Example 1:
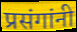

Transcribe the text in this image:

प्रसंगांनी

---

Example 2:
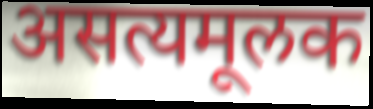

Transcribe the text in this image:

असत्यमूलक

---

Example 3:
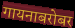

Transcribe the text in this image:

गायनाबरोबर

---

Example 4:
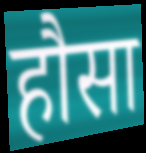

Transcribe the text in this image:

हौसा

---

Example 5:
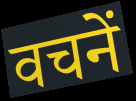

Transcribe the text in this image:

वचनें